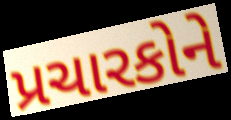
પ્રચારકોને